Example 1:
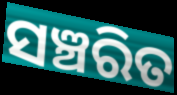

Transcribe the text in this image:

ସଞ୍ଚରିତ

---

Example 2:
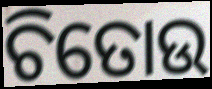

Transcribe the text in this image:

ଚିତୋଉ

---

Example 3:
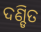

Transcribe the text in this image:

ଦଣ୍ଡିତ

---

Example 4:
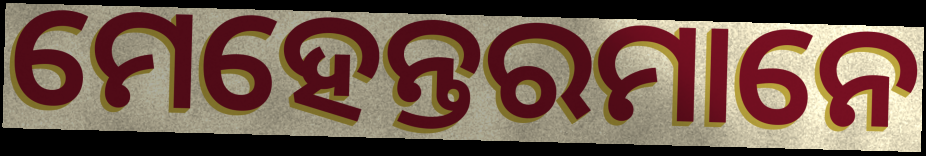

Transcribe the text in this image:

ମେହେନ୍ତରମାନେ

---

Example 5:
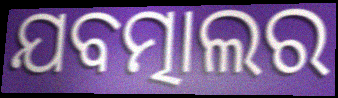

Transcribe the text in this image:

ଯବତ୍ମାଲର